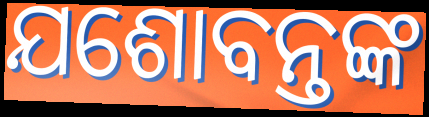
ଯଶୋବନ୍ତଙ୍କ